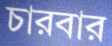
চারবার